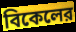
বিকেলের